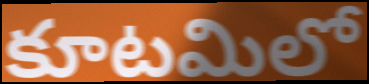
కూటమిలో